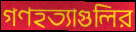
গণহত্যাগুলির